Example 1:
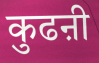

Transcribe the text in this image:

कुढऩी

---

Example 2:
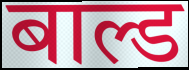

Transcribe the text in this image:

बाल्ड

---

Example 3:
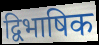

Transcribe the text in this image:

द्विभाषिक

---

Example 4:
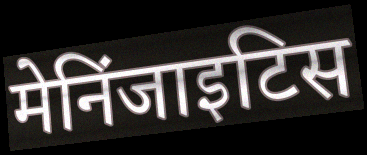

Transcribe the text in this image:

मेनिंजाइटिस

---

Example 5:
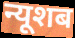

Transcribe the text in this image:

न्यूशब